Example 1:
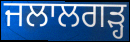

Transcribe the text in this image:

ਜਲਾਲਗੜ੍ਹ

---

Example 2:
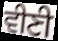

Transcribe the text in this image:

ਵੀਣੀ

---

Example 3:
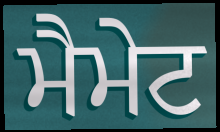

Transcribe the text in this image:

ਮੈਮੇਟ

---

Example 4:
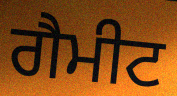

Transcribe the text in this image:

ਗੈਮੀਟ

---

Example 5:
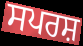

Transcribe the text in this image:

ਸਪਰਸ਼